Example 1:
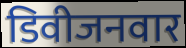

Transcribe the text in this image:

डिवीजनवार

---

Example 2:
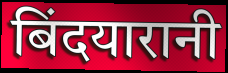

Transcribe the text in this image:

बिंदयारानी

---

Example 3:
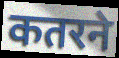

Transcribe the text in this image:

कतरने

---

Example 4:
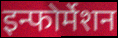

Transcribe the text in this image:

इन्फोर्मेशन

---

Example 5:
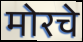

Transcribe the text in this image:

मोरचे